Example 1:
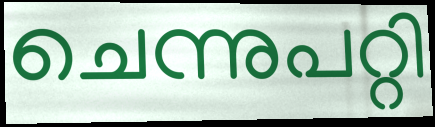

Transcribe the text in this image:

ചെന്നുപറ്റി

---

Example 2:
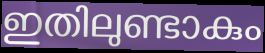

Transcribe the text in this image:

ഇതിലുണ്ടാകും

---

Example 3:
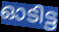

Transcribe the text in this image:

ഓടിട്ട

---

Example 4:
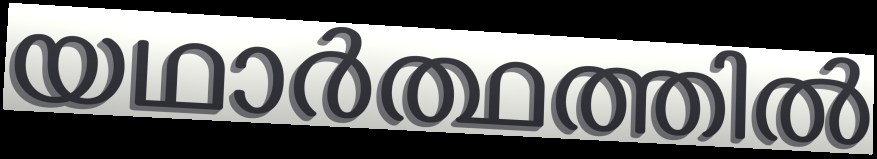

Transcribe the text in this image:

യഥാർത്ഥത്തിൽ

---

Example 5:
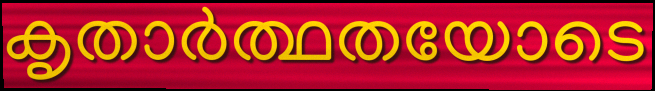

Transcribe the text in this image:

കൃതാർത്ഥതയോടെ